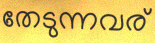
തേടുന്നവര്